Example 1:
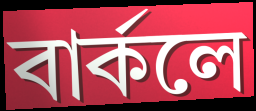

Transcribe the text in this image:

বার্কলে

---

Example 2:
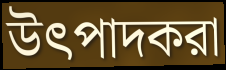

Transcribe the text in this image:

উৎপাদকরা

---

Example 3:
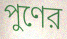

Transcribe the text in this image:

পুণের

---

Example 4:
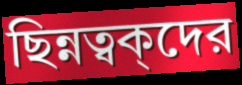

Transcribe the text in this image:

ছিন্নত্বক্দের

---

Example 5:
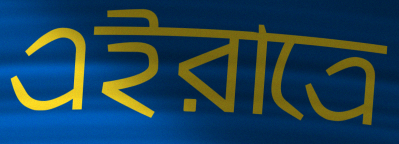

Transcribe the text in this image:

এইরাত্রে